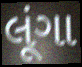
લૂંગા